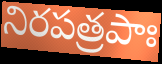
నిరపత్రపాః